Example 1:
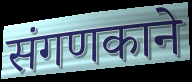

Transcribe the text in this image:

संगणकाने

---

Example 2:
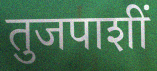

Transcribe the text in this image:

तुजपाशीं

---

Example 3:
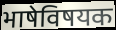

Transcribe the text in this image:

भाषेविषयक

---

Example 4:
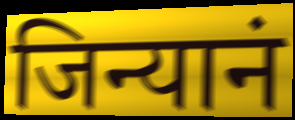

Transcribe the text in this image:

जिन्यानं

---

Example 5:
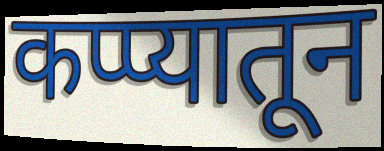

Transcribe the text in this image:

कप्प्यातून